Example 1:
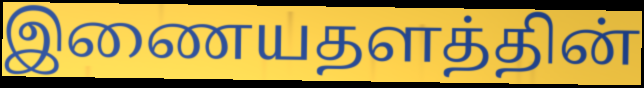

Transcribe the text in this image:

இணையதளத்தின்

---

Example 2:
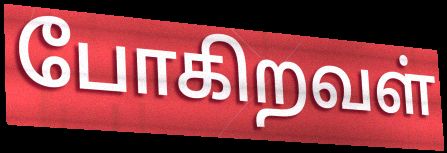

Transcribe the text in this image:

போகிறவள்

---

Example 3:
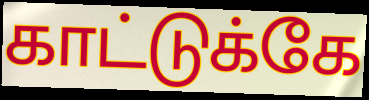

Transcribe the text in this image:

காட்டுக்கே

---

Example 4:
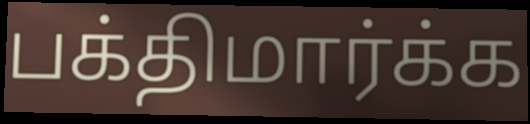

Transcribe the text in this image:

பக்திமார்க்க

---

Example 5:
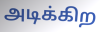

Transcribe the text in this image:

அடிக்கிற